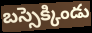
బస్సెక్కిండు